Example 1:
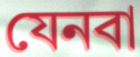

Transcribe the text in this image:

যেনবা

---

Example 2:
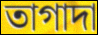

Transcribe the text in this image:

তাগাদা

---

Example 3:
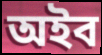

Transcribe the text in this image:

অইব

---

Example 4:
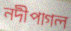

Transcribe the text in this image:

নদীপাগল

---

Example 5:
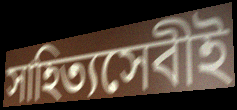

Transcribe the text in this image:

সাহিত্যসেবীই